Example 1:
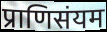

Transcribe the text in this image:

प्राणिसंयम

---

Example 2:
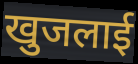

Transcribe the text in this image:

खुजलाई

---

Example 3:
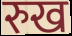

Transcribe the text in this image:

रुख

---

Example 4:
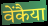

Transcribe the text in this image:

वेंकैया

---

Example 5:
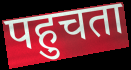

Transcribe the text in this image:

पहुचता